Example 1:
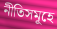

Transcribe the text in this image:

নীতিসমূহে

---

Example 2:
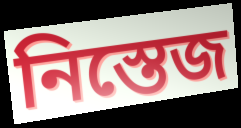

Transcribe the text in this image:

নিস্তেজ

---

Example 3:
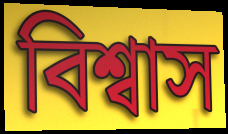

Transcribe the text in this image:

বিশ্বাস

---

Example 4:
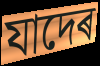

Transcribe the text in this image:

যাদেৰ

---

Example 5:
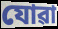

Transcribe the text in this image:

যোৱা